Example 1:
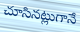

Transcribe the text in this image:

చూసినట్లుగానే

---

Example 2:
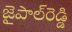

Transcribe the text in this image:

జైపాల్‌రెడ్డి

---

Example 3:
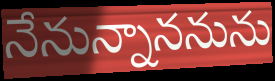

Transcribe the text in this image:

నేనున్నాననును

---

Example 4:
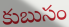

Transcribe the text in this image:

కుబుసం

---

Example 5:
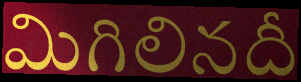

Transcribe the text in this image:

మిగిలినదీ